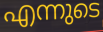
എന്നുടെ